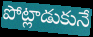
పోట్లాడుకునే